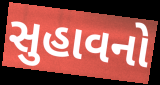
સુહાવનો